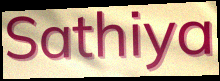
Sathiya